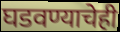
घडवण्याचेही